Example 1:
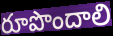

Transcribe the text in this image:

రూపొందాలి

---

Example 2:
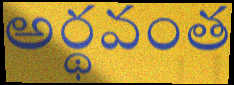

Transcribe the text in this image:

అర్థవంత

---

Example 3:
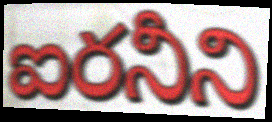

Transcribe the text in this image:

ఐరనీని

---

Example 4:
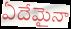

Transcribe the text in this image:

ఏదేమైనా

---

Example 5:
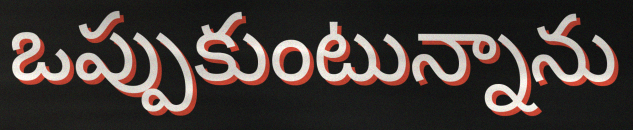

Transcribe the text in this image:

ఒప్పుకుంటున్నాను